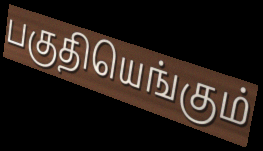
பகுதியெங்கும்